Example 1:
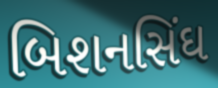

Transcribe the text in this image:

બિશનસિંઘ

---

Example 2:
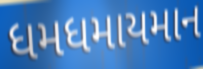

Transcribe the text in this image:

ધમધમાયમાન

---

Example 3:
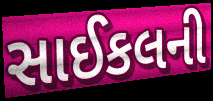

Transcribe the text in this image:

સાઈકલની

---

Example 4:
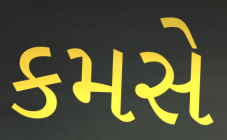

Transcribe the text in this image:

કમસે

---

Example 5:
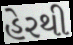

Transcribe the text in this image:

હેરથી